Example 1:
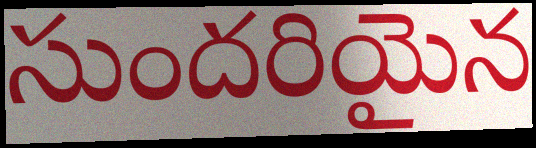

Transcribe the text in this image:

సుందరియైన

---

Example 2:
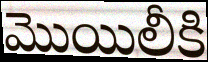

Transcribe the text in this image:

మొయిలీకి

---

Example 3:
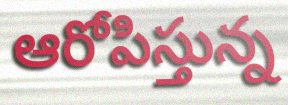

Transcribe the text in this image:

ఆరోపిస్తున్న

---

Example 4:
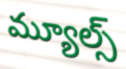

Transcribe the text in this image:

మ్యూల్స్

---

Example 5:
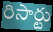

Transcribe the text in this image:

రిసార్టు